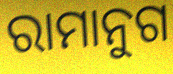
ରାମାନୁଗ